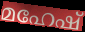
മഹേഷ്